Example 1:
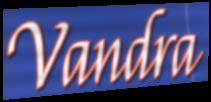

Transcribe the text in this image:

Vandra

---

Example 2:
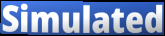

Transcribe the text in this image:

Simulated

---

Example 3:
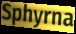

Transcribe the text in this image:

Sphyrna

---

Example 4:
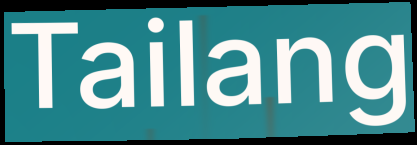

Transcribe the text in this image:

Tailang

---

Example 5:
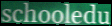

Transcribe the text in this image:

schooledu